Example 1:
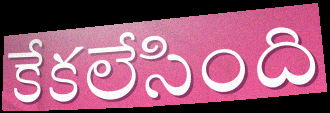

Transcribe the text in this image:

కేకలేసింది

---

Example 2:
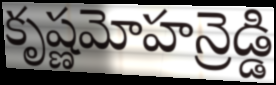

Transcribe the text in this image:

కృష్ణమోహన్రెడ్డి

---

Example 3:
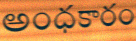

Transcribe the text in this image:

అంధకారం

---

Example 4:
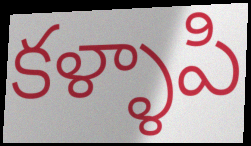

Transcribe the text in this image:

కళ్ళాపి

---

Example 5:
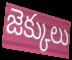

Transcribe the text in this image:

జెక్కులు